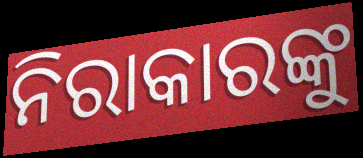
ନିରାକାରଙ୍କୁ